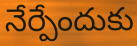
నేర్పేందుకు